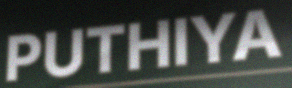
PUTHIYA